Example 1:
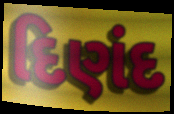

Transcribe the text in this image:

દિણંદ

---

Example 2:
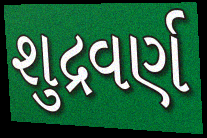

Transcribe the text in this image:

શુદ્રવર્ણ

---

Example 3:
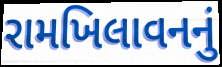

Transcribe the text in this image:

રામખિલાવનનું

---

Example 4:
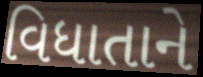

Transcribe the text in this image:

વિધાતાને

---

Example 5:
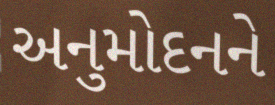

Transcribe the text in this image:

અનુમોદનને